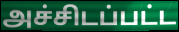
அச்சிடப்பட்ட